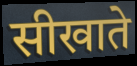
सीखाते